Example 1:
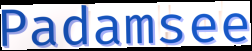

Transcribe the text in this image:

Padamsee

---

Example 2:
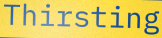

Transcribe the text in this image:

Thirsting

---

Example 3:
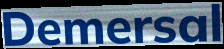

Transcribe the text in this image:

Demersal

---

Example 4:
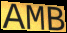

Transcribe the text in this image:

AMB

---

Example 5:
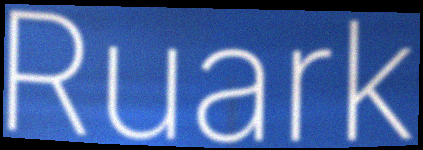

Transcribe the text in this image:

Ruark